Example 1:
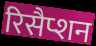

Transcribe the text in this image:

रिसैप्शन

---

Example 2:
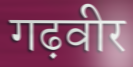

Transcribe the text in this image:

गढ़वीर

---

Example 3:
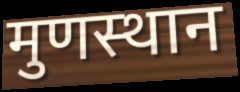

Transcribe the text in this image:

मुणस्थान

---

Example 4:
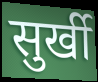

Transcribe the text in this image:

सुर्खी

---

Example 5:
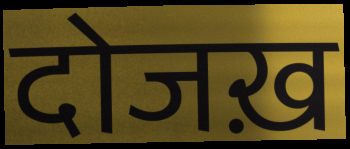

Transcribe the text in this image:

दोजख़